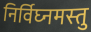
निर्विघ्नमस्तु